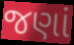
જણાં